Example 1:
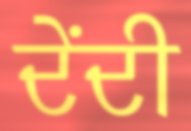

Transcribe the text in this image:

ਦੇਂਦੀ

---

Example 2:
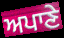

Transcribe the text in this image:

ਅਪਾਣੇ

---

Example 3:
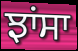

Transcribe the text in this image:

ਝਾਂਸਾ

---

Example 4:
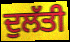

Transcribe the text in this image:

ਦੁਲੱਤੀ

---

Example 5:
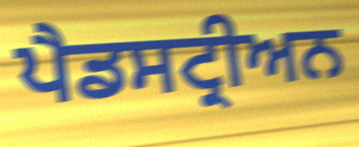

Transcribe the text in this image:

ਪੈਡਸਟ੍ਰੀਅਨ